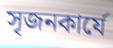
সৃজনকার্যে